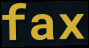
fax